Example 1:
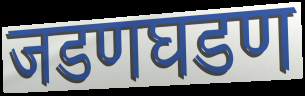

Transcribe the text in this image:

जडणघडण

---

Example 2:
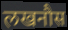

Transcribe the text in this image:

लखनौस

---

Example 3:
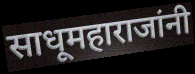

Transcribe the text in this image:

साधूमहाराजांनी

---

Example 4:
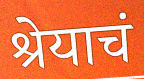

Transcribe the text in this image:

श्रेयाचं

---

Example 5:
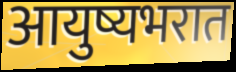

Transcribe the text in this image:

आयुष्यभरात